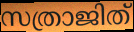
സത്രാജിത്